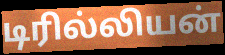
டிரில்லியன்